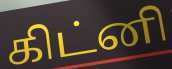
கிட்னி